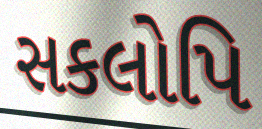
સકલોપિ